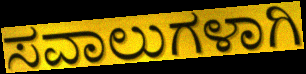
ಸವಾಲುಗಳಾಗಿ